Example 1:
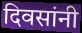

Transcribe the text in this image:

दिवसांनी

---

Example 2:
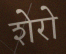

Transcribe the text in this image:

शेरो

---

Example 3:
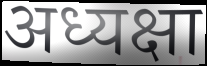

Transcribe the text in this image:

अध्यक्षा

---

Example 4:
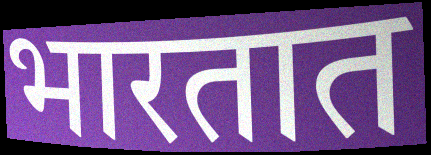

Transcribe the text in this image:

भारतात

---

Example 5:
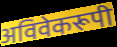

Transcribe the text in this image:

अविवेकरूपी